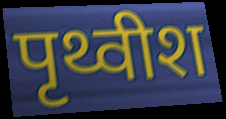
पृथ्वीश